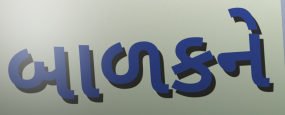
બાળકને